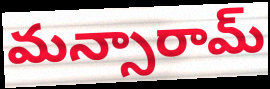
మన్సారామ్